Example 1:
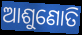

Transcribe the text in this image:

ଆଶୁଣୋତି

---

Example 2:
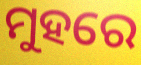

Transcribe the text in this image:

ମୁହରେ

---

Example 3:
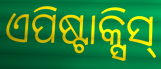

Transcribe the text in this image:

ଏପିଷ୍ଟାକ୍ସିସ୍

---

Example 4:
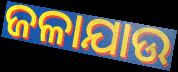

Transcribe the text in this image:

ଜଳାଯାଉ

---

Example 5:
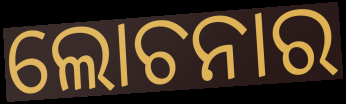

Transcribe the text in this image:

ଲୋଚନାର